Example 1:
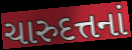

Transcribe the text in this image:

ચારુદત્તનાં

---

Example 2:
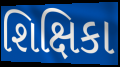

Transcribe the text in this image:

શિક્ષિકા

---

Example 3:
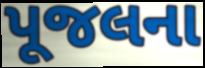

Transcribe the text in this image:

પૂજલના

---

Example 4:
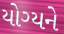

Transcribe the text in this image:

યોગ્યને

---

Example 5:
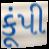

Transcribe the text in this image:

કૂંપી